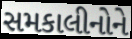
સમકાલીનોને